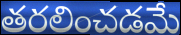
తరలించడమే